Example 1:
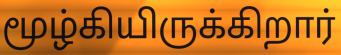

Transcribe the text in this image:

மூழ்கியிருக்கிறார்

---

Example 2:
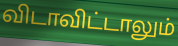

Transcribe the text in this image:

விடாவிட்டாலும்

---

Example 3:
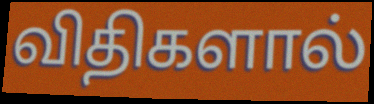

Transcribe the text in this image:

விதிகளால்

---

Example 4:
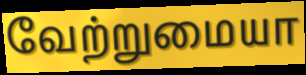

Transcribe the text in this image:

வேற்றுமையா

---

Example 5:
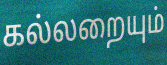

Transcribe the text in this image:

கல்லறையும்